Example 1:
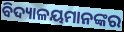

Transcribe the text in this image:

ବିଦ୍ୟାଳୟମାନଙ୍କର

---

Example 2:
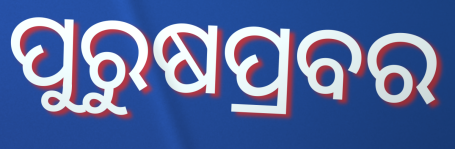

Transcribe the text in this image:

ପୁରୁଷପ୍ରବର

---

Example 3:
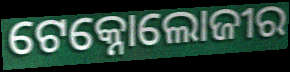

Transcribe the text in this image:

ଟେକ୍ନୋଲୋଜୀର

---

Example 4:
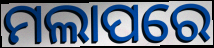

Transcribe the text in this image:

ମଲାପରେ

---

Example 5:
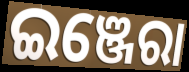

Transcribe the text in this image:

ଇଞ୍ଜେରା